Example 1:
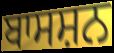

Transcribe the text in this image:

ਬਾਸਸ਼ਨ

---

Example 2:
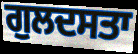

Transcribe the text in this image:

ਗੁਲਦਸਤਾ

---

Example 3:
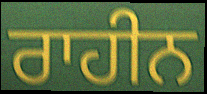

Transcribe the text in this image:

ਰਾਹੀਨ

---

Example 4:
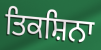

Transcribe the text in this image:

ਤਿਕਸ਼ਿਨਾ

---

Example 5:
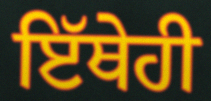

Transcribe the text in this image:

ਇੱਥੇਹੀ